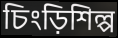
চিংড়িশিল্প